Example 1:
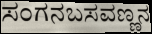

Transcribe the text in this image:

ಸಂಗನಬಸವಣ್ಣನ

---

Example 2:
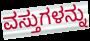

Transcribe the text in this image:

ವಸ್ತುಗಳನ್ನು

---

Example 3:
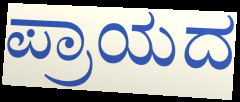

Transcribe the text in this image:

ಪ್ರಾಯದ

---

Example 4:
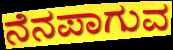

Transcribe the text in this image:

ನೆನಪಾಗುವ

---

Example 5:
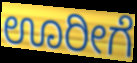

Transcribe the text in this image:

ಊರೀಗೆ